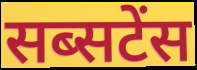
सब्सटेंस